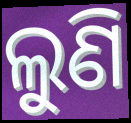
ଲୁଣି